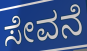
ಸೇವನೆ